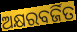
ଅକ୍ଷରବର୍ଜିତ